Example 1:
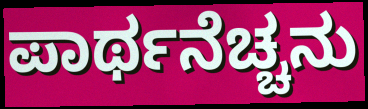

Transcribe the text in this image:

ಪಾರ್ಥನೆಚ್ಚನು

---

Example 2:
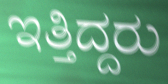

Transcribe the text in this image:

ಇತ್ತಿದ್ದರು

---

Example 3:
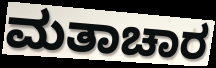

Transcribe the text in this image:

ಮತಾಚಾರ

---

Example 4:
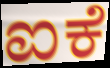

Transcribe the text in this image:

ಐಕೆ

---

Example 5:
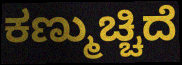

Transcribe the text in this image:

ಕಣ್ಮುಚ್ಚಿದೆ